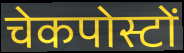
चेकपोस्टों